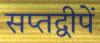
सप्तद्वीपें